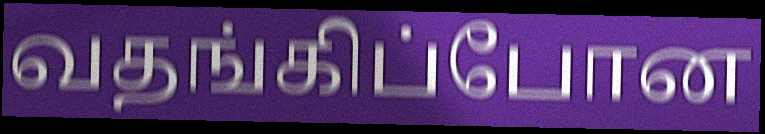
வதங்கிப்போன